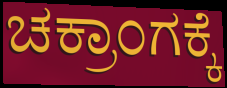
ಚಕ್ರಾಂಗಕ್ಕೆ